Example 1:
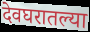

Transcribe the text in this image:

देवघरातल्या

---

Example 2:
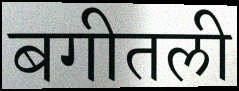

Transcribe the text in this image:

बगीतली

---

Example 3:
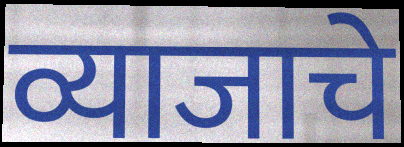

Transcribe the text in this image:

व्याजाचे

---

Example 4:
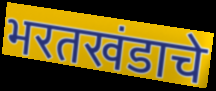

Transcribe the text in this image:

भरतखंडाचे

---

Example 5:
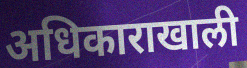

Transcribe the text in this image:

अधिकाराखाली